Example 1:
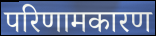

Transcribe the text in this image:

परिणामकारण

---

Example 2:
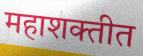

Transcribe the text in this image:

महाशक्तीत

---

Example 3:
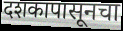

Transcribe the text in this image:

दशकापासूनचा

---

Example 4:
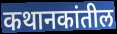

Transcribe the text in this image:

कथानकांतील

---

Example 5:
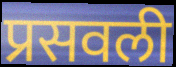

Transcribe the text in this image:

प्रसवली